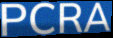
PCRA